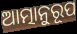
ଆତ୍ମାନୁରୂପ